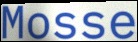
Mosse